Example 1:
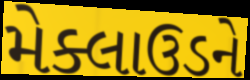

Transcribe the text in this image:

મેક્લાઉડને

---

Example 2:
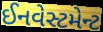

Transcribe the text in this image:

ઈનવેસ્ટમેન્ટ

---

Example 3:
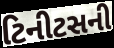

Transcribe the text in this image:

ટિનીટસની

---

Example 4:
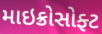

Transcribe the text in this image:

માઇક્રોસોફ્ટ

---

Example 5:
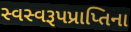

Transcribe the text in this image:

સ્વસ્વરૂપપ્રાપ્તિના